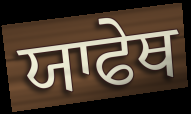
ਯਾਫੇਥ